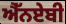
ਐੱਨਏਬੀ